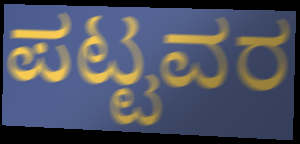
ಪಟ್ಟವರ